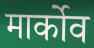
मार्कोव